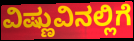
ವಿಷ್ಣುವಿನಲ್ಲಿಗೆ